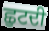
ਛੁਟਦੀ